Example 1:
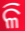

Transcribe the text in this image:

ଳି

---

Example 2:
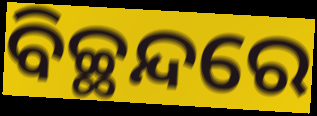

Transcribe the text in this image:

ବିଚ୍ଛନ୍ଦରେ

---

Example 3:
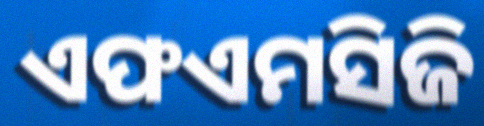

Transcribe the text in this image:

ଏଫଏମସିଜି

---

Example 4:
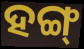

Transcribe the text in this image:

ହଙ୍ଗ୍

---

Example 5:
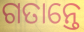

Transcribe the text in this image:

ଗତାନ୍ତେ